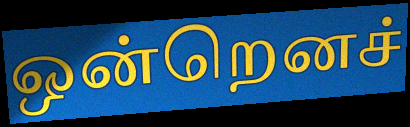
ஒன்றெனச்